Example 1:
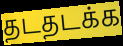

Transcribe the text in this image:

தடதடக்க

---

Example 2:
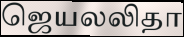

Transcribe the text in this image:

ஜெயலலிதா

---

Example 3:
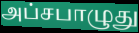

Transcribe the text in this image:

அப்சபாழுது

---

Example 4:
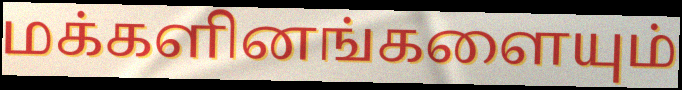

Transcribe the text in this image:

மக்களினங்களையும்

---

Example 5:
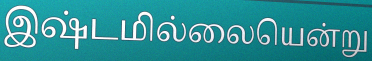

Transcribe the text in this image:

இஷ்டமில்லையென்று